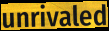
unrivaled